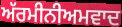
ਅੱਰਮੀਨੀਅਮਵਾਦ